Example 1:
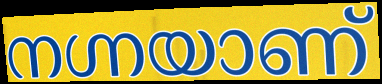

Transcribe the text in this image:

നഗ്നയാണ്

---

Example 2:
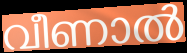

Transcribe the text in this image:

വീണാൽ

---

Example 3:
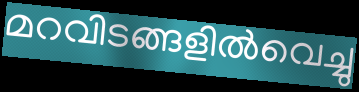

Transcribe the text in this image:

മറവിടങ്ങളിൽവെച്ചു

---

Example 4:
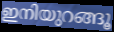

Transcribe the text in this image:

ഇനിയുറങ്ങൂ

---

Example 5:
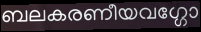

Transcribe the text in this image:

ബലകരണീയവഗ്ഗോ